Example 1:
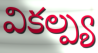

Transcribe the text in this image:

వికల్ప్య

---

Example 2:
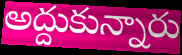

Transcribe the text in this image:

అద్దుకున్నారు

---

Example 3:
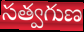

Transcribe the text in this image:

సత్వగుణ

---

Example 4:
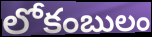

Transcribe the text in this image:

లోకంబులం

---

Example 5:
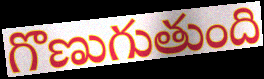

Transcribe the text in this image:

గొణుగుతుంది